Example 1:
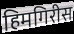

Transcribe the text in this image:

हिमगिरीस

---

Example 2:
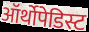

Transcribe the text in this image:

ऑर्थोपेडिस्ट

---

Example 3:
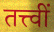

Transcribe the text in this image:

तत्त्वीं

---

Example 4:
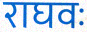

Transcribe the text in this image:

राघवः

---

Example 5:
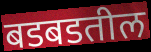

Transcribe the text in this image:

बडबडतील